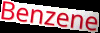
Benzene